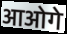
आओगे